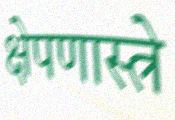
क्षेपणास्त्रे